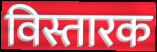
विस्तारक